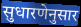
सुधारणेनुसार